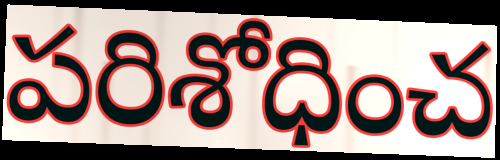
పరిశోధించ